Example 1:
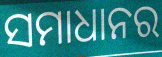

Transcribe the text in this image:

ସମାଧାନର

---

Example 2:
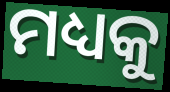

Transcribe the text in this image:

ମଧ୍ୟକୁ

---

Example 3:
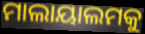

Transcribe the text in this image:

ମାଲାୟାଲମକୁ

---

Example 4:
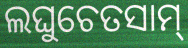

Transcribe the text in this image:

ଲଘୁଚେତସାମ୍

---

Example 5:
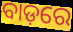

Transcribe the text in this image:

ବାଡ଼ରେ